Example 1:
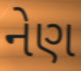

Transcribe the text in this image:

નેણ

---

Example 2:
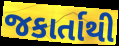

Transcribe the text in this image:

જકાર્તાથી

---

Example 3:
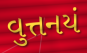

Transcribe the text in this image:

વુત્તનયં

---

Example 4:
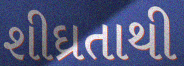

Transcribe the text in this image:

શીઘ્રતાથી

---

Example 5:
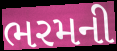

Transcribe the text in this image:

ભરમની